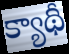
క్యాథీ